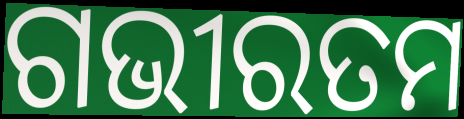
ଗଭୀରତମ